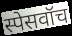
स्पेसवॉच